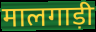
मालगाड़ी